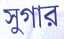
সুগার